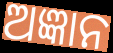
ଅଜ୍ଞାନ